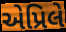
એપ્રિલે